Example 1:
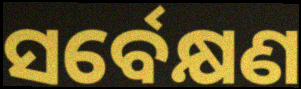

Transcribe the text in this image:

ସର୍ବେକ୍ଷଣ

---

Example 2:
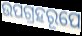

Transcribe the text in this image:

ଉପଗ୍ରହରୂପେ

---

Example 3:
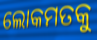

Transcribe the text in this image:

ଲୋକମତକୁ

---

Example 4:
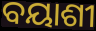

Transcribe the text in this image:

ବୟାଶୀ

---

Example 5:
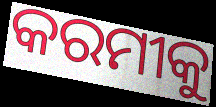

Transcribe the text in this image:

କରମୀକୁ